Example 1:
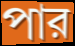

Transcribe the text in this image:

পার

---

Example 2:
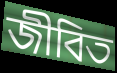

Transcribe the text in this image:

জীবিত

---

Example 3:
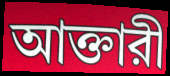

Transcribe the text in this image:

আক্তারী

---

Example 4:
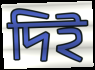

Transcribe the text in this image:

দিই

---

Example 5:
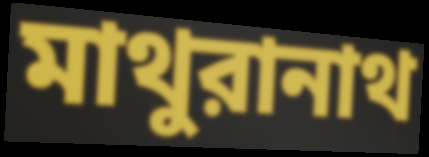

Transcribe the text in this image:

মাথুরানাথ